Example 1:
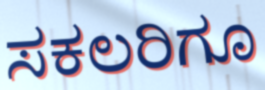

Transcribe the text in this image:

ಸಕಲರಿಗೂ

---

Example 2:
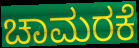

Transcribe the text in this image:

ಚಾಮರಕೆ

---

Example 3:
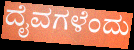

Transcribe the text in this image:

ದೈವಗಳೆಂದು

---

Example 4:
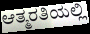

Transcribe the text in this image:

ಆತ್ಮರತಿಯಲ್ಲಿ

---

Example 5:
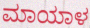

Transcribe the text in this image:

ಮಾಯಾಳ